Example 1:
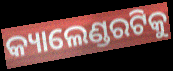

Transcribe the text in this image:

କ୍ୟାଲେଣ୍ଡରଟିକୁ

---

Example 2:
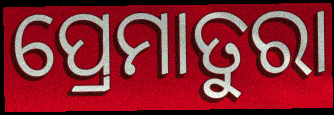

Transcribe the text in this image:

ପ୍ରେମାତୁରା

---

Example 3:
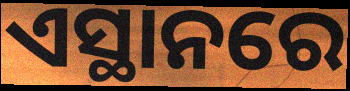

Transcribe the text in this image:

ଏସ୍ଥାନରେ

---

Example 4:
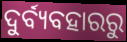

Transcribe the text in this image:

ଦୁର୍ବ୍ୟବହାରରୁ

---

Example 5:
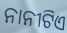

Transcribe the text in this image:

ନାନୀଟିଏ